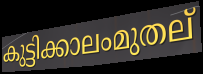
കുട്ടിക്കാലംമുതല്